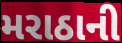
મરાઠાની